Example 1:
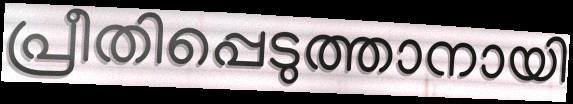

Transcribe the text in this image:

പ്രീതിപ്പെടുത്താനായി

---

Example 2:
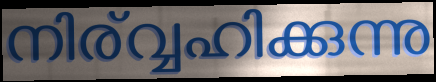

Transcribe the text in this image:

നിര്വ്വഹിക്കുന്നു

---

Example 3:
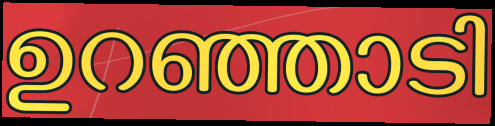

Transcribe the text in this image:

ഉറഞ്ഞാടി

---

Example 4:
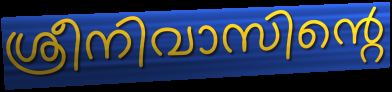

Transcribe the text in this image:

ശ്രീനിവാസിന്റെ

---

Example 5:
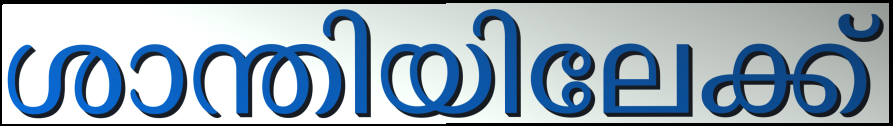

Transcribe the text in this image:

ശാന്തിയിലേക്ക്